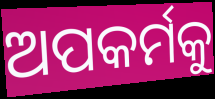
ଅପକର୍ମକୁ